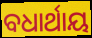
ବଧାର୍ଥାୟ